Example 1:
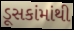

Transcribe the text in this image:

ડૂસકાંમાંથી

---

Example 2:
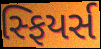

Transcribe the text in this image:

સ્ફિયર્સ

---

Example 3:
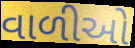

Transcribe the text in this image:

વાળીઓ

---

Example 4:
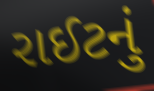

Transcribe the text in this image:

રાઈટનું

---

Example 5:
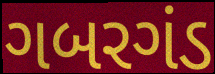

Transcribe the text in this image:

ગબરગંડ